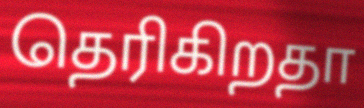
தெரிகிறதா